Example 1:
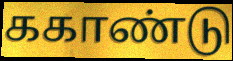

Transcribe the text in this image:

ககாண்டு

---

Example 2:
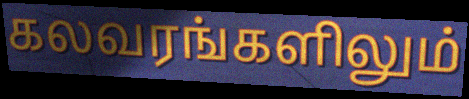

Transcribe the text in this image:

கலவரங்களிலும்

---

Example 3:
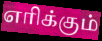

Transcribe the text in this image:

எரிக்கும்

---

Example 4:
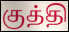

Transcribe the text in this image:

குத்தி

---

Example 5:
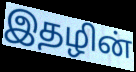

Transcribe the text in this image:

இதழின்